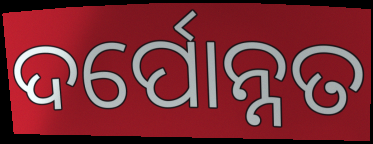
ଦର୍ପୋନ୍ନତ